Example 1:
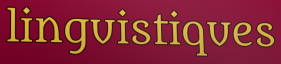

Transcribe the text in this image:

linguistiques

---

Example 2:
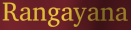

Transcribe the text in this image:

Rangayana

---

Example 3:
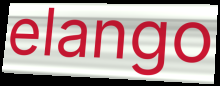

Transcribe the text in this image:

elango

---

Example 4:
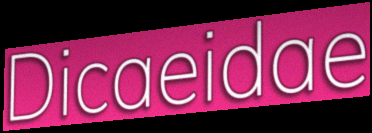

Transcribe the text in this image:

Dicaeidae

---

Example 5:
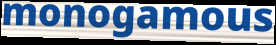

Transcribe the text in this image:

monogamous